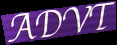
ADVT